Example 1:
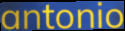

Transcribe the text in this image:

antonio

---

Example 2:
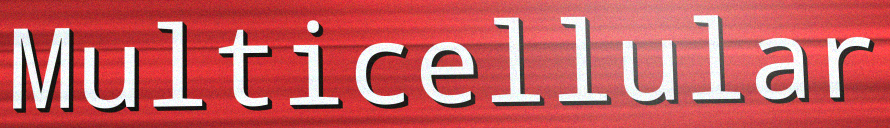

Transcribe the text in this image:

Multicellular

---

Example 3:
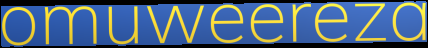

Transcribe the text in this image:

omuweereza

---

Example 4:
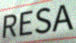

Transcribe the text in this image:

RESA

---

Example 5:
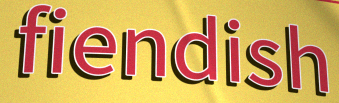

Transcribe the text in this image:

fiendish